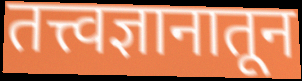
तत्त्वज्ञानातून